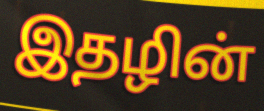
இதழின்